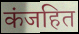
कंजहित